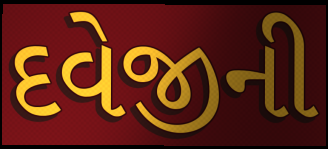
દવેજીની